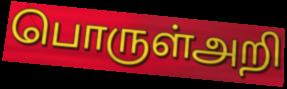
பொருள்அறி